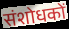
संशोधकों